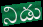
నిడు